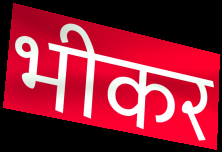
भीकर